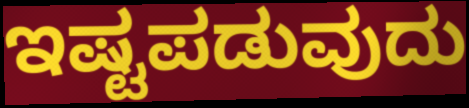
ಇಷ್ಟಪಡುವುದು